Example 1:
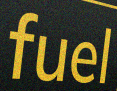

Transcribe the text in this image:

fuel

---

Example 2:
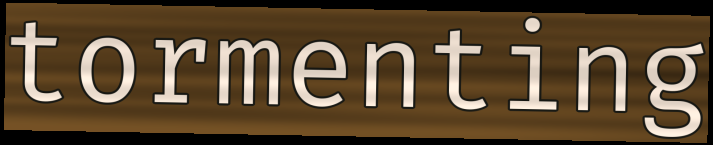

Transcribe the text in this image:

tormenting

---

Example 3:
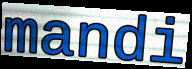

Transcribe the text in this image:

mandi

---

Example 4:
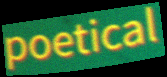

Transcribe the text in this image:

poetical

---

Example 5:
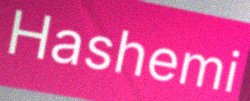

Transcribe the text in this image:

Hashemi